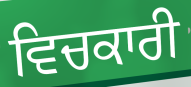
ਵਿਚਕਾਰੀ